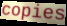
copies